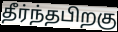
தீர்ந்தபிறகு